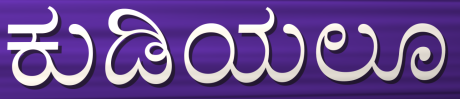
ಕುಡಿಯಲೂ